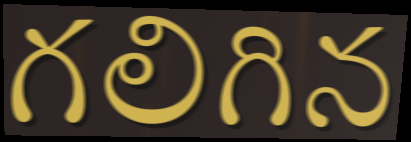
గలిగిన